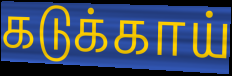
கடுக்காய்